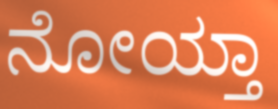
ನೋಯ್ತಾ